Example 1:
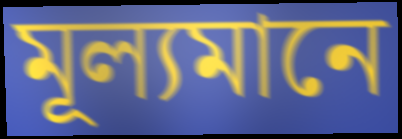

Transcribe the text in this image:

মূল্যমানে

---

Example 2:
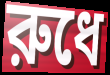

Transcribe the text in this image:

রুধে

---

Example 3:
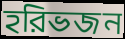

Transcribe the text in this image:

হরিভজন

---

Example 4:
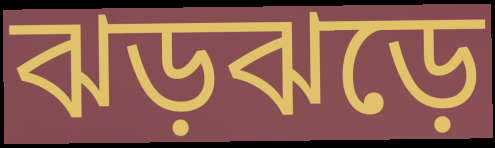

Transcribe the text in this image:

ঝড়ঝড়ে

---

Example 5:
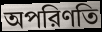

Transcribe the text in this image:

অপরিণতি